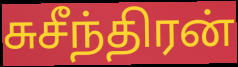
சுசீந்திரன்